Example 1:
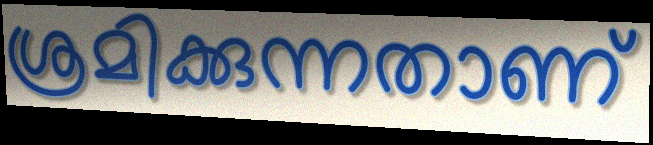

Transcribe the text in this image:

ശ്രമിക്കുന്നതാണ്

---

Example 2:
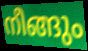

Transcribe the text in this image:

നീങ്ങും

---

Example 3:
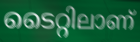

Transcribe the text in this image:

ടൈറ്റിലാണ്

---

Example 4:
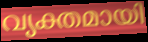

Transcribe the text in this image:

വ്യക്തമായി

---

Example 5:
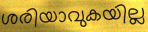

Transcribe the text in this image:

ശരിയാവുകയില്ല